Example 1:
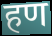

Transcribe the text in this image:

हण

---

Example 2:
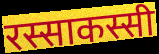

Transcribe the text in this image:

रस्साकस्सी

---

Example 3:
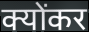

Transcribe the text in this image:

क्योंकर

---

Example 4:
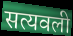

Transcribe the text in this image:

सत्यवली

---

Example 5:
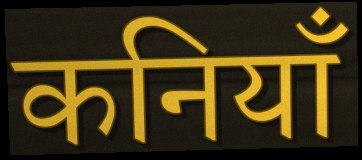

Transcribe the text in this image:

कनियाँ